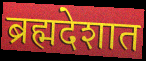
ब्रह्मदेशात